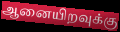
ஆனையிறவுக்கு